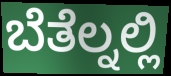
ಬೆತೆಲ್ನಲ್ಲಿ